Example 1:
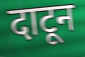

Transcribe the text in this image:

दाटून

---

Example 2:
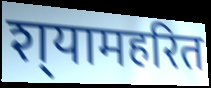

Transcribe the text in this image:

श्यामहरित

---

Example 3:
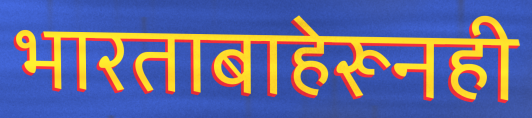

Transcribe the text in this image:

भारताबाहेरूनही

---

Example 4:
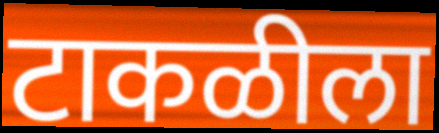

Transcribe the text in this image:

टाकळीला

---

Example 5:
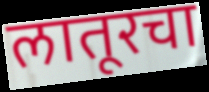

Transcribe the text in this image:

लातूरचा